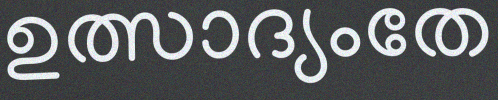
ഉത്സാദ്യംതേ